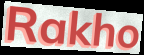
Rakho